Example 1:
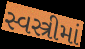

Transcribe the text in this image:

સ્વસ્ત્રીમાં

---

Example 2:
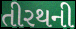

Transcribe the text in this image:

તીરથની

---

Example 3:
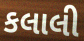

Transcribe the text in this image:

કલાલી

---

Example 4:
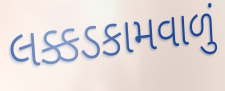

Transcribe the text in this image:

લક્કડકામવાળું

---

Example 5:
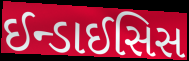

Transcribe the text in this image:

ઈન્ડાઈસિસ